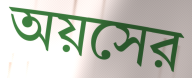
অয়সের